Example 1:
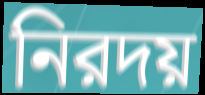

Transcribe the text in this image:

নিরদয়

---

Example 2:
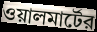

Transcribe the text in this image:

ওয়ালমার্টের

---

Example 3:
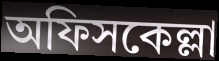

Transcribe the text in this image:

অফিসকেল্লা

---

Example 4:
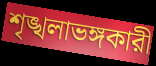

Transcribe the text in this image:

শৃঙ্খলাভঙ্গকারী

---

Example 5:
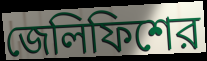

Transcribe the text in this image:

জেলিফিশের